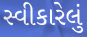
સ્વીકારેલું